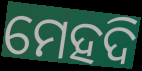
ମେହଦି